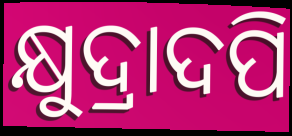
କ୍ଷୁଦ୍ରାଦପି